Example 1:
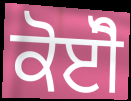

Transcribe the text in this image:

ਕੋਈੋ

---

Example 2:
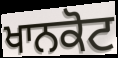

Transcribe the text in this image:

ਖਾਨਕੋਟ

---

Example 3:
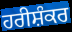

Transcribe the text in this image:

ਹਰੀਸ਼ੰਕਰ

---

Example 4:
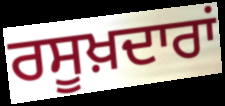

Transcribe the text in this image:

ਰਸੂਖ਼ਦਾਰਾਂ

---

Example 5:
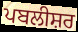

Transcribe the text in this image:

ਪਬਲੀਸ਼ਰ